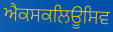
ਐਕਸਕਲਿਊਸਿਵ